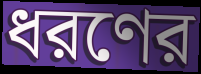
ধরণের